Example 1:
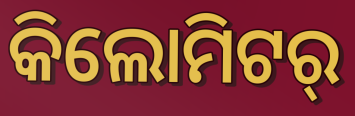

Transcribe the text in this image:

କିଲୋମିଟର୍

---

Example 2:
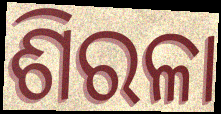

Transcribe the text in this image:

ଶିରଳା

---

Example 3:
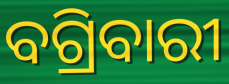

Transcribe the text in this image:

ବଗ୍ରିବାରୀ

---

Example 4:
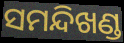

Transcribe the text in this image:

ସମନ୍ଦିଖଣ୍ଡ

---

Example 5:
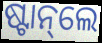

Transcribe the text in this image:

ଷ୍ଟାନ୍‌ଲେ